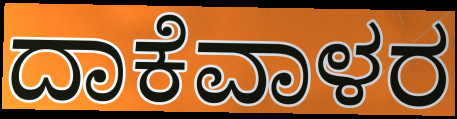
ದಾಕೆವಾಳರ